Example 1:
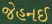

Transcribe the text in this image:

જેહનઈ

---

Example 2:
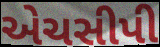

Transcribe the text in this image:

એચસીપી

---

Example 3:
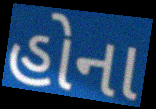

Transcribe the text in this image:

હોના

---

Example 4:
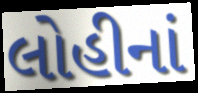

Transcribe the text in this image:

લોહીનાં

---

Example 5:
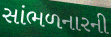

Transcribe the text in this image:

સાંભળનારની